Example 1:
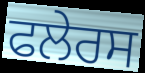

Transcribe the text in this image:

ਫਲੇਰਸ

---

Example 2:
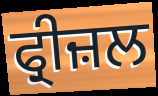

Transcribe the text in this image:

ਫ੍ਰੀਜ਼ਲ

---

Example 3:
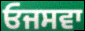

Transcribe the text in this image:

ਓਜਸਵਾ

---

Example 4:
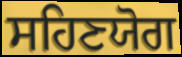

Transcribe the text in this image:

ਸਹਿਣਯੋਗ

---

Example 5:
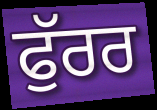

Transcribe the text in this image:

ਫੁੱਰਰ